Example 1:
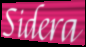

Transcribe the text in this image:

Sidera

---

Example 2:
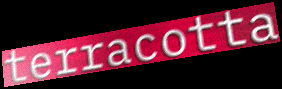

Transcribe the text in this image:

terracotta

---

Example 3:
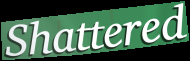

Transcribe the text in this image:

Shattered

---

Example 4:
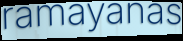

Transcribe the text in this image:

ramayanas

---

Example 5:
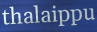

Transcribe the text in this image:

thalaippu